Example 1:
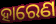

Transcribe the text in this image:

ହାରେଣ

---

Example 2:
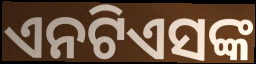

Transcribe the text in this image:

ଏନଟିଏସଙ୍କ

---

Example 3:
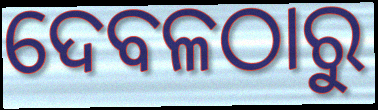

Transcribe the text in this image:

ଦେବଳଠାରୁ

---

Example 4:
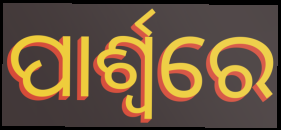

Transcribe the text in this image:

ପାର୍ଶ୍ୱରେ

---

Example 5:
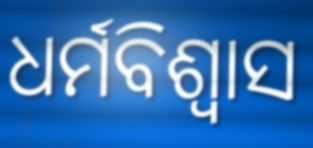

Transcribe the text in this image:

ଧର୍ମବିଶ୍ଵାସ